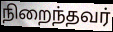
நிறைந்தவர்